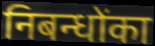
निबन्धोंका